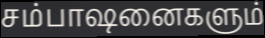
சம்பாஷனைகளும்